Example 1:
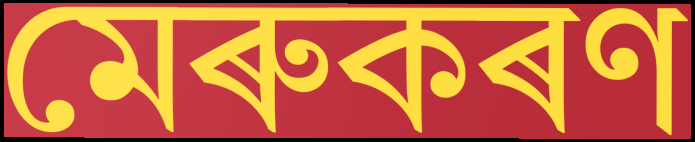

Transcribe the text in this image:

মেৰুকৰণ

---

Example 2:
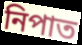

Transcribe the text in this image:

নিপাত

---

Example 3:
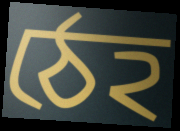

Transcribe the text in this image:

ঠেহ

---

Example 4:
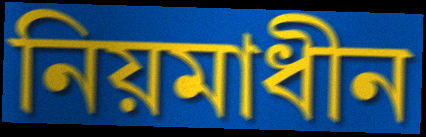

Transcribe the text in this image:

নিয়মাধীন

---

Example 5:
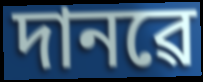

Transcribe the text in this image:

দানৱে